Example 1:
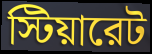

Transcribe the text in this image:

স্টিয়ারেট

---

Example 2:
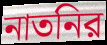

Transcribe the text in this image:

নাতনির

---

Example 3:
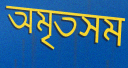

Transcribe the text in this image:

অমৃতসম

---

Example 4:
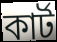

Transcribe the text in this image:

কার্ট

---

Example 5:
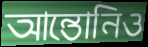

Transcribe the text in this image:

আন্তোনিও